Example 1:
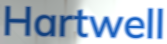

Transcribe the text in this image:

Hartwell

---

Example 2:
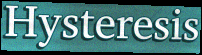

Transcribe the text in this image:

Hysteresis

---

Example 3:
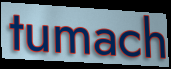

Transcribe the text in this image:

tumach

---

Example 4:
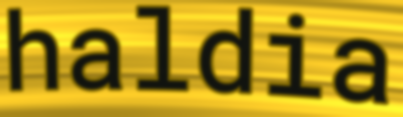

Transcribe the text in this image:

haldia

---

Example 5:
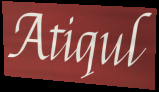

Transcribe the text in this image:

Atiqul